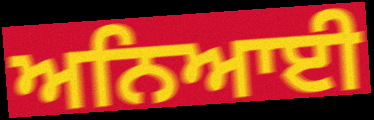
ਅਨਿਆਈ